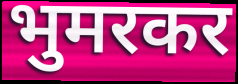
भुमरकर